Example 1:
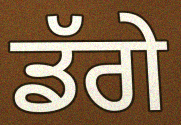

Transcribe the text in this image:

ਡੱਗੇ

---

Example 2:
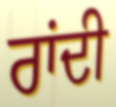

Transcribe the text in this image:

ਰਾਂਦੀ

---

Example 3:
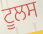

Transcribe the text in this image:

ਟੂਲਸ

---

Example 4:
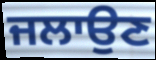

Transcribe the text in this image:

ਜਲਾਉਣ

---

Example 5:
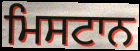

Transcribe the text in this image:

ਮਿਸਟਾਨ